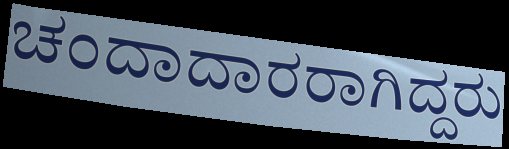
ಚಂದಾದಾರರಾಗಿದ್ದರು